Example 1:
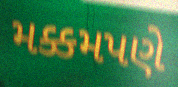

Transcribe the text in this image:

મક્કમપણે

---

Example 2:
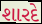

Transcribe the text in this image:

શારદે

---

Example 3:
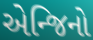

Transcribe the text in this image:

એન્જિનો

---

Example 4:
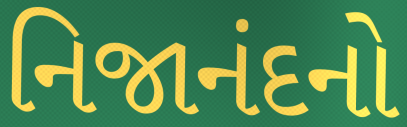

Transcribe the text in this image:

નિજાનંદનો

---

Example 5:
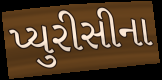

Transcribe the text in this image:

પ્યુરીસીના